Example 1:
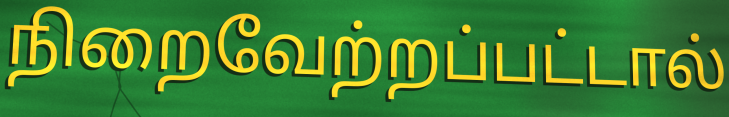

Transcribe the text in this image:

நிறைவேற்றப்பட்டால்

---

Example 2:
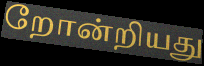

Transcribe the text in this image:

றோன்றியது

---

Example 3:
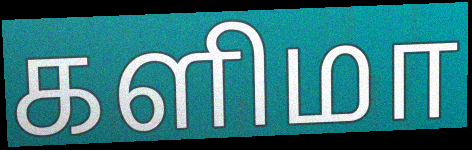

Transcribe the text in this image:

களிமா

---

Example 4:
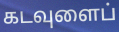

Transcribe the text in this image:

கடவுளைப்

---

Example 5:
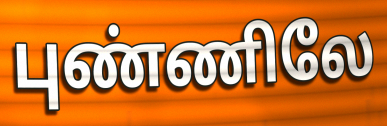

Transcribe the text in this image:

புண்ணிலே